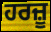
ਹਰਜ਼ੂ